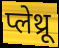
प्लेथ्रू